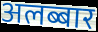
अलब्बार